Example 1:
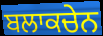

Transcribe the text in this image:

ਬਲਾਕਚੇਨ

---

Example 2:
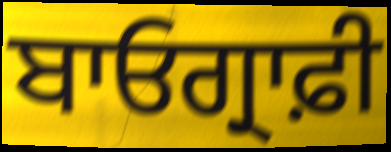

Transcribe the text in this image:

ਬਾਓਗ੍ਰਾਫ਼ੀ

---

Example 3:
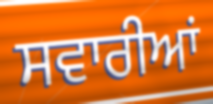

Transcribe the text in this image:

ਸਵਾਰੀਆਂ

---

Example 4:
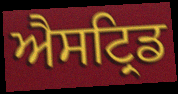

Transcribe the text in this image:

ਐਸਟ੍ਰਿਡ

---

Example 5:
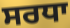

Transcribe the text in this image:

ਸਰਧਾ